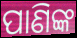
ପାଣିଙ୍କ